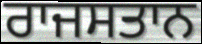
ਰਾਜਸਤਾਨ